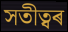
সতীত্বৰ